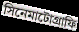
সিনেমাটোগ্রাফি